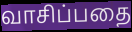
வாசிப்பதை